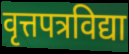
वृत्तपत्रविद्या